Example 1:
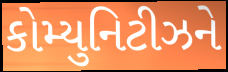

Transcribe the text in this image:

કોમ્યુનિટીઝને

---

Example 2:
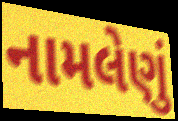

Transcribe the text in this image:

નામલેણું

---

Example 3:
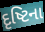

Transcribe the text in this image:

દૃષ્ટિના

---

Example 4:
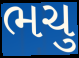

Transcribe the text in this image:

ભચુ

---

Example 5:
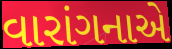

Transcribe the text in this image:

વારાંગનાએ